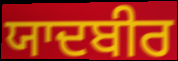
ਯਾਦਬੀਰ